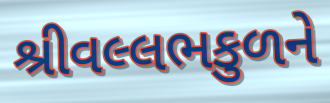
શ્રીવલ્લભકુળને